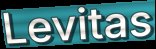
Levitas